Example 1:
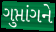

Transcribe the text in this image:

ગુપ્તાંગને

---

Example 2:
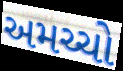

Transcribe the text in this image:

અમચ્ચો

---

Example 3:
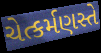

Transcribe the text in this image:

ચેત્કર્મણસ્તે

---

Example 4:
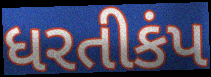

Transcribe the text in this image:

ધરતીકંપ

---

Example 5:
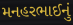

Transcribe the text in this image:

મનહરભાઈનું